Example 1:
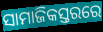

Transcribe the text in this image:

ସାମାଜିକସ୍ତରରେ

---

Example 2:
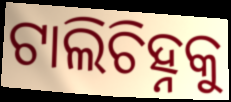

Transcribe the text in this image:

ଟାଲିଚିହ୍ନକୁ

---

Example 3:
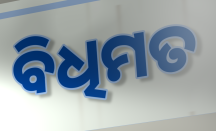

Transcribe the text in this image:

ବିଧିମତ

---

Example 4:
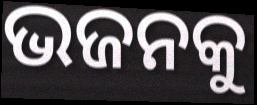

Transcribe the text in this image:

ଭଜନକୁ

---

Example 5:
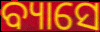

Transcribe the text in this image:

ବ୍ୟାସେ